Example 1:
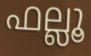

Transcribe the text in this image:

ഫല്ലൂ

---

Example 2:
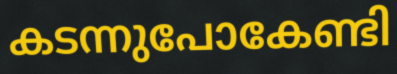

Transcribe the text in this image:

കടന്നുപോകേണ്ടി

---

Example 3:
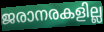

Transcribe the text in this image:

ജരാനരകളില്ല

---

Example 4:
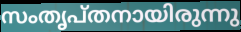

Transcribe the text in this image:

സംതൃപ്തനായിരുന്നു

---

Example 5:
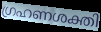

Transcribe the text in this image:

ഗ്രഹണശക്തി